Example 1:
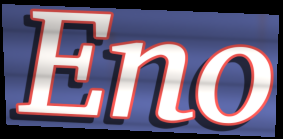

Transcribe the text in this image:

Eno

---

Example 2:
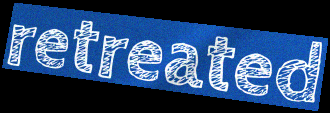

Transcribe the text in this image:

retreated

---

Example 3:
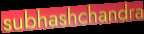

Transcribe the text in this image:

subhashchandra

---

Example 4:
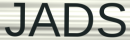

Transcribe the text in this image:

JADS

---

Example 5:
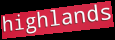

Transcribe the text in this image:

highlands